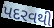
પદરવથી